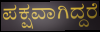
ಪಕ್ಷವಾಗಿದ್ದರೆ